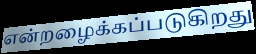
என்றழைக்கப்படுகிறது